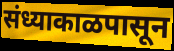
संध्याकाळपासून